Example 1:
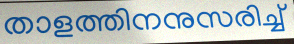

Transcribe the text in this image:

താളത്തിനനുസരിച്ച്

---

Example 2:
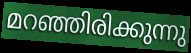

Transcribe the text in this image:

മറഞ്ഞിരിക്കുന്നു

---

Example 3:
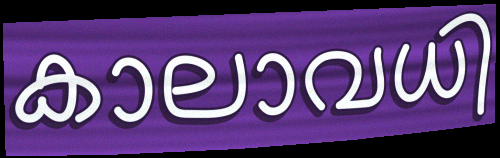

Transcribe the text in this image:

കാലാവധി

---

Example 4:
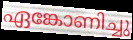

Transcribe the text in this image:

ഏങ്കോണിച്ചു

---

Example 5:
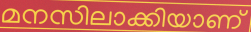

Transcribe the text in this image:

മനസിലാക്കിയാണ്